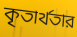
কৃতার্থতার